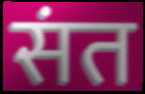
संत